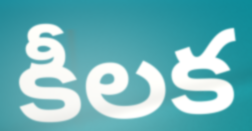
కీలక